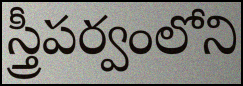
స్త్రీపర్వంలోని